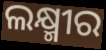
ଲକ୍ଷ୍ମୀର